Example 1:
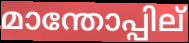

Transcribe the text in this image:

മാന്തോപ്പില്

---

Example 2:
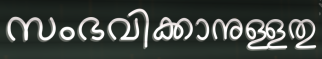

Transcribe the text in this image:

സംഭവിക്കാനുള്ളതു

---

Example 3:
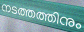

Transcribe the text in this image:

നടത്തത്തിനും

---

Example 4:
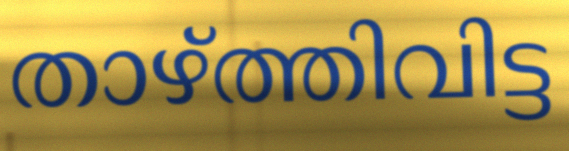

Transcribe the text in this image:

താഴ്ത്തിവിട്ട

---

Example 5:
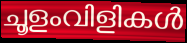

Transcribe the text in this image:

ചൂളംവിളികൾ